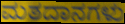
ಮತದಾನಗಳು